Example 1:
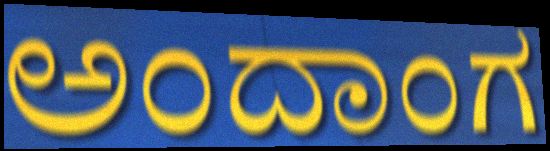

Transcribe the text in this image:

ಅಂದಾಂಗ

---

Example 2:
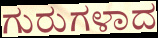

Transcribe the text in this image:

ಗುರುಗಳಾದ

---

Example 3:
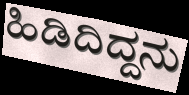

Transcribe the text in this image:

ಹಿಡಿದಿದ್ದನು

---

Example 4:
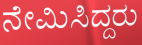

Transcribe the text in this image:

ನೇಮಿಸಿದ್ದರು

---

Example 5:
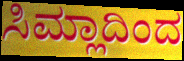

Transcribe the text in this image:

ಸಿಮ್ಲಾದಿಂದ